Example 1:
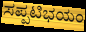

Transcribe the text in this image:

ಸಪ್ಪಟಿಭಯಂ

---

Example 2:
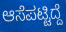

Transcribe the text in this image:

ಆಸೆಪಟ್ಟಿದ್ದೆ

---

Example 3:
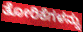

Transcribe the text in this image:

ತೋರಿಕೆಗಳನ್ನು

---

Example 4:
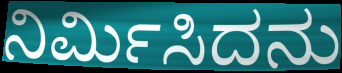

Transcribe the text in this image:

ನಿರ್ಮಿಸಿದನು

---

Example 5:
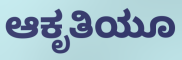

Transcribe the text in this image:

ಆಕೃತಿಯೂ